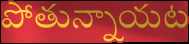
పోతున్నాయట